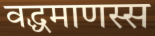
वद्धमाणस्स